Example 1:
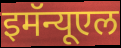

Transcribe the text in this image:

इमॅन्यूएल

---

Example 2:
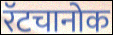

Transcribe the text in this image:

रॅटचानोक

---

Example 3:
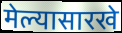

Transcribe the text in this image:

मेल्यासारखे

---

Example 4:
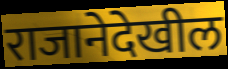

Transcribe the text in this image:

राजानेदेखील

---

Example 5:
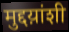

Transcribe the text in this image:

मुद्दय़ांशी